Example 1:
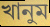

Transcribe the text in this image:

খানুম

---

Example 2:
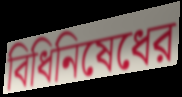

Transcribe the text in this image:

বিধিনিষেধের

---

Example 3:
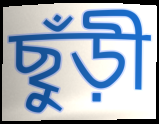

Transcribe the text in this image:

ছুঁড়ী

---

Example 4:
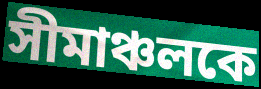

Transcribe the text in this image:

সীমাঞ্চলকে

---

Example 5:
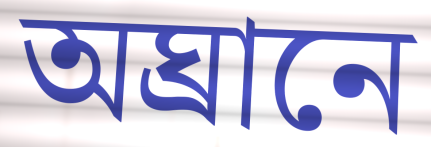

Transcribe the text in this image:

অঘ্রানে